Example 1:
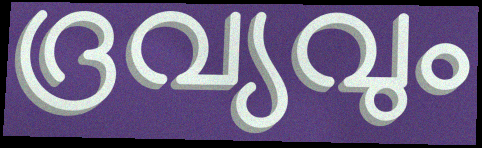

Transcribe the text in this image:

ദ്രവ്യവും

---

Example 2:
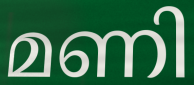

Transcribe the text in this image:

മണി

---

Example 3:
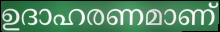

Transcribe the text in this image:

ഉദാഹരണമാണ്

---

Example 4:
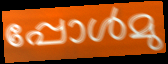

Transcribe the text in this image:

പ്പോൾമു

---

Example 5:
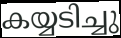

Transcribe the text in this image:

കയ്യടിച്ചു